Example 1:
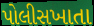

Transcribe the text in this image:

પોલીસખાતા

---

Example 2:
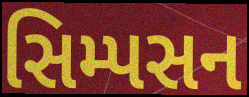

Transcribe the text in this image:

સિમ્પસન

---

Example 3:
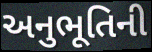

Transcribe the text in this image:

અનુભૂતિની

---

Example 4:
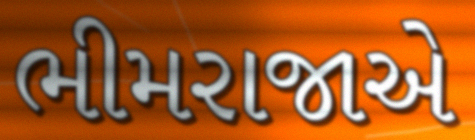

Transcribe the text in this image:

ભીમરાજાએ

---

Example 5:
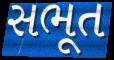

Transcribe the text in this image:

સભૂત